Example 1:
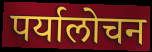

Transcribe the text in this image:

पर्यालोचन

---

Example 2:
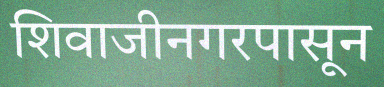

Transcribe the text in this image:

शिवाजीनगरपासून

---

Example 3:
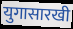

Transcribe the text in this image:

युगासारखी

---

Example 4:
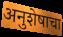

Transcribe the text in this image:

अनुशेषाचा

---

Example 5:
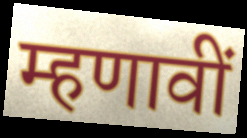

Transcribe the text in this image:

म्हणावीं